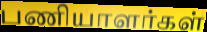
பணியாளர்கள்